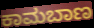
ಕಾಮಬಾಣ